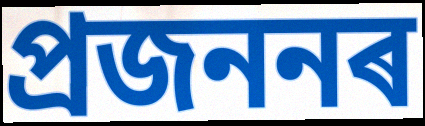
প্ৰজননৰ